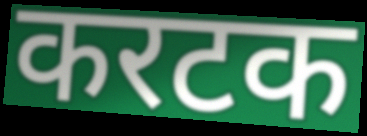
करटक